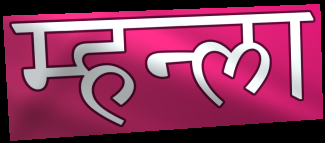
म्हन्ला